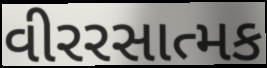
વીરરસાત્મક